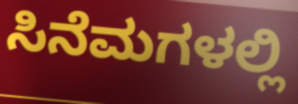
ಸಿನೆಮಗಳಲ್ಲಿ